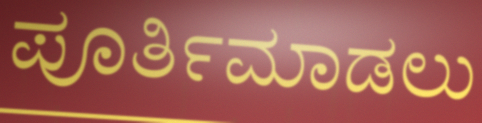
ಪೂರ್ತಿಮಾಡಲು